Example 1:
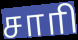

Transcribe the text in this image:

சாரி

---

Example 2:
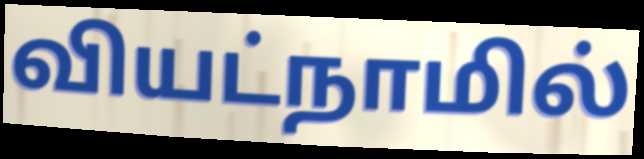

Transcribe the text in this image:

வியட்நாமில்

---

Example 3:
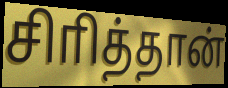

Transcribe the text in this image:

சிரித்தான்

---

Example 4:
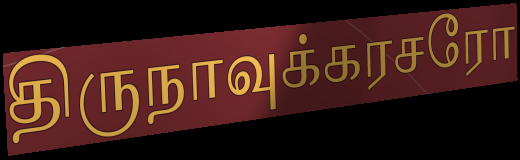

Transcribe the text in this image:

திருநாவுக்கரசரோ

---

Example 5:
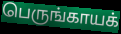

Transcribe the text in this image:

பெருங்காயக்